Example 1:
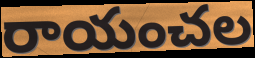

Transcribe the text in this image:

రాయంచల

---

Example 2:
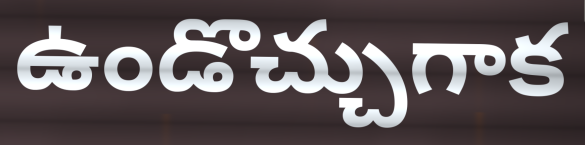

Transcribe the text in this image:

ఉండొచ్చుగాక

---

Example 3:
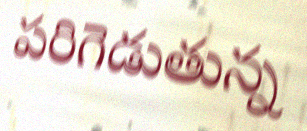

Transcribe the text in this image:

పరిగెడుతున్న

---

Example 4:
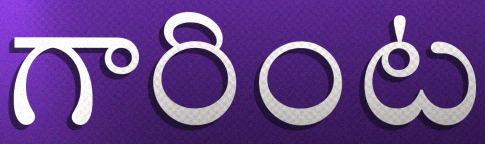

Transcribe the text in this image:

గారింట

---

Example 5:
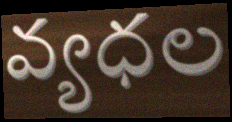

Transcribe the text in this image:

వ్యధల